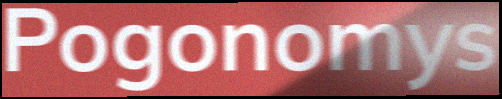
Pogonomys